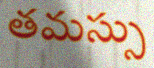
తమస్సు